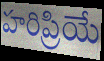
హరిప్రియే